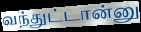
வந்துட்டான்னு